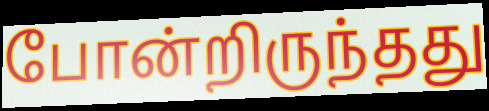
போன்றிருந்தது